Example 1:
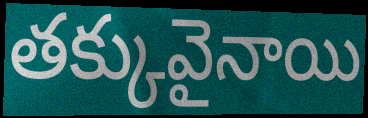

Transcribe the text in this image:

తక్కువైనాయి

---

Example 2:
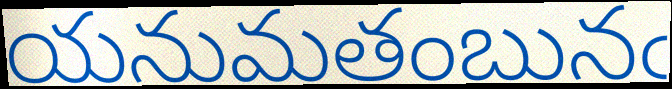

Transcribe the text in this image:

యనుమతంబునఁ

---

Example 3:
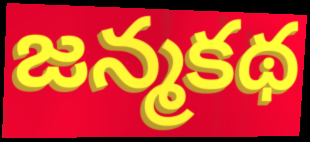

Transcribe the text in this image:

జన్మకథ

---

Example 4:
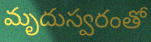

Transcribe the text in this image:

మృదుస్వరంతో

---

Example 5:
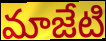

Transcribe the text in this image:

మాజేటి